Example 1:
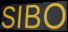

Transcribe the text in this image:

SIBO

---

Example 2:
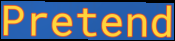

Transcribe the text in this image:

Pretend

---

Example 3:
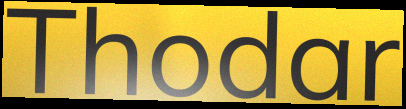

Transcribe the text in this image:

Thodar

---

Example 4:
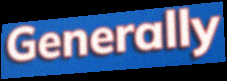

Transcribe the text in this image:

Generally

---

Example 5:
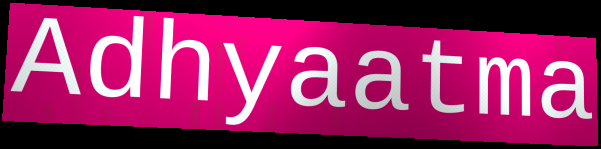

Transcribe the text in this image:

Adhyaatma